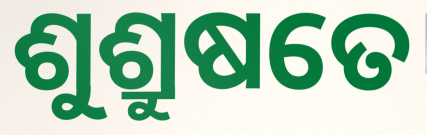
ଶୁଶ୍ରୁଷତେ